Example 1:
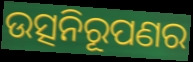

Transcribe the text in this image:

ଉତ୍ସନିରୂପଣର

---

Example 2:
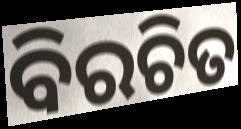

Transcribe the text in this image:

ବିରଚିତ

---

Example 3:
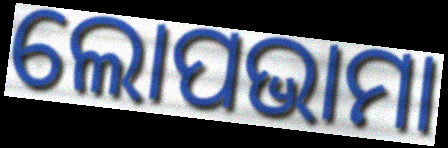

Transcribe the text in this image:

ଲୋପଭାମା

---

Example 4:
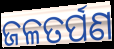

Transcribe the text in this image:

ଜଳତର୍ପଣ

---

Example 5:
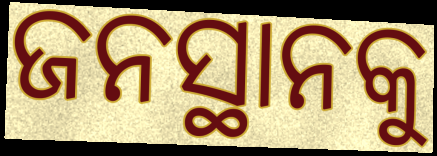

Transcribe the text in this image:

ଜନସ୍ଥାନକୁ